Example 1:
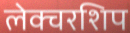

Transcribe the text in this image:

लेक्चरशिप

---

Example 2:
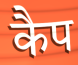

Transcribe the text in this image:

कैप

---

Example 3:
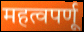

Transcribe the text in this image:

महत्‍वपर्णू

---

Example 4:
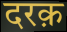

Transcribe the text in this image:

दरक़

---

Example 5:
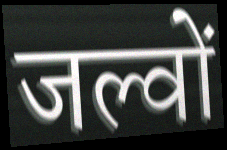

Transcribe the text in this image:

जल्वों